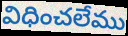
విధించలేము